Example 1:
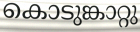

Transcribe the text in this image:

കൊടുങ്കാറ്റു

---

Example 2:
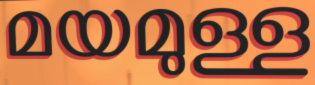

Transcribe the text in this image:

മയമുള്ള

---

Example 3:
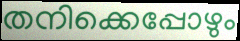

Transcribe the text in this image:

തനിക്കെപ്പോഴും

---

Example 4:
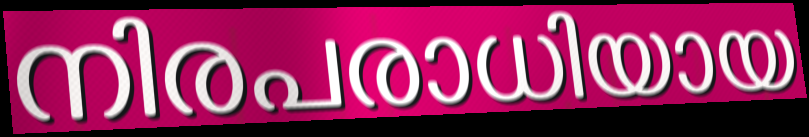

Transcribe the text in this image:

നിരപരാധിയായ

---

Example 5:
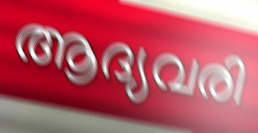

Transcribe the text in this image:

ആദ്യവരി